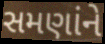
સમણાંને